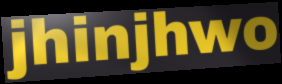
jhinjhwo